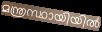
മന്ത്രസ്ഥായിയിൽ